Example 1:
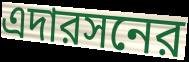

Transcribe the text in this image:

এদারসনের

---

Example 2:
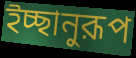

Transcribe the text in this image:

ইচ্ছানুরূপ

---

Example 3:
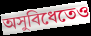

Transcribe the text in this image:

অসুবিধেতেও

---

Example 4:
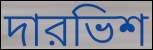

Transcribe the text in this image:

দারভিশ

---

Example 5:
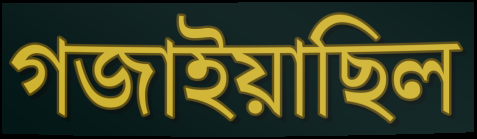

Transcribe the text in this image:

গজাইয়াছিল